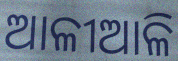
ଆଳୀଆଳି